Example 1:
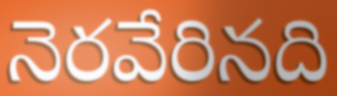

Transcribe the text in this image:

నెరవేరినది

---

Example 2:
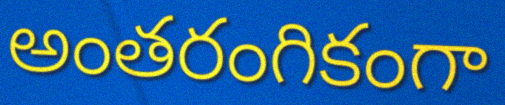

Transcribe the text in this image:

అంతరంగికంగా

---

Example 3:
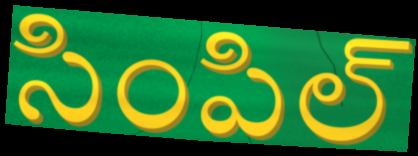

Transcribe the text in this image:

సింపిల్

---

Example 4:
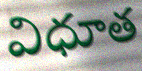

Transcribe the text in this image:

విధూత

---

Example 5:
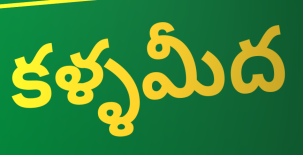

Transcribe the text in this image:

కళ్ళమీద